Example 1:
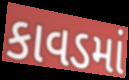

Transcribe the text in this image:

કાવડમાં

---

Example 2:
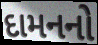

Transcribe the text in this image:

દામનનો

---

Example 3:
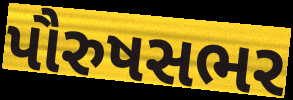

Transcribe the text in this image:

પૌરુષસભર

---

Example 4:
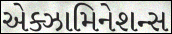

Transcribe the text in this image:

એક્ઝામિનેશન્સ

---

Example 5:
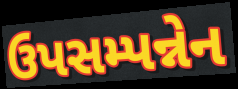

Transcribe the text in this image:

ઉપસમ્પન્નેન